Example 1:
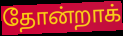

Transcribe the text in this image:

தோன்றாக்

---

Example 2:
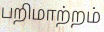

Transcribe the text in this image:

பறிமாற்றம்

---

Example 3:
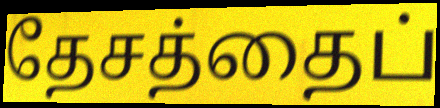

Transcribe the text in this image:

தேசத்தைப்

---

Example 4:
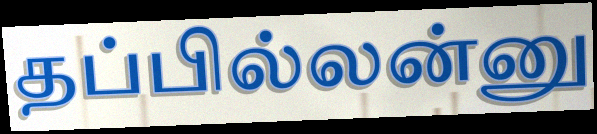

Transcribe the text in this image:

தப்பில்லன்னு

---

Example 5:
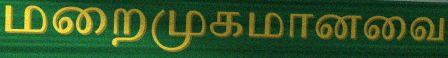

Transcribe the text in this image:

மறைமுகமானவை